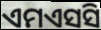
ଏମଏସସି